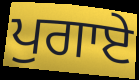
ਪੁਗਾਏ